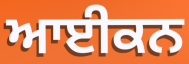
ਆਈਕਨ